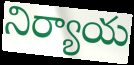
నిర్యాయ